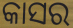
କାସର